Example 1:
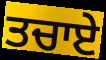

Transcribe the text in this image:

ਤਚਾਏ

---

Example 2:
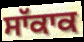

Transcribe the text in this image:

ਸਾੱਕਾਕ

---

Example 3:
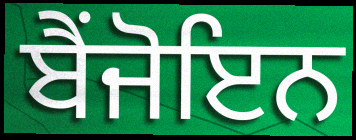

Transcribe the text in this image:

ਬੈਂਜੋਇਨ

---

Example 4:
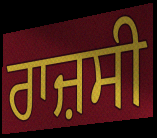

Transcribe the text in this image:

ਰਾਜ਼ਸੀ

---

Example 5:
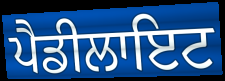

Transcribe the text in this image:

ਪੈਡੀਲਾਇਟ